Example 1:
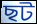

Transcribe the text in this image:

ছট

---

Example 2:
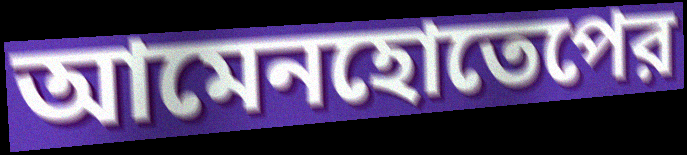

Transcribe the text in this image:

আমেনহোতেপের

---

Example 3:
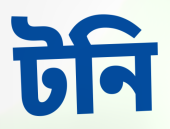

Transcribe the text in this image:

টনি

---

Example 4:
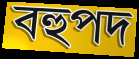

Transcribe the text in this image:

বহুপদ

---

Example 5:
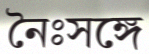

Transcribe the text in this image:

নৈঃসঙ্গে